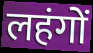
लहंगों